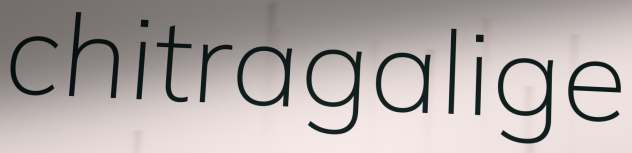
chitragalige